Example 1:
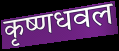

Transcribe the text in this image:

कृष्णधवल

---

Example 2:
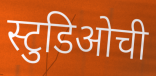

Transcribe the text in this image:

स्टुडिओची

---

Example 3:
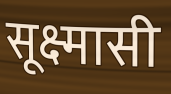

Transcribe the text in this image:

सूक्ष्मासी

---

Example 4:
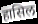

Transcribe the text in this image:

हासिल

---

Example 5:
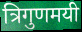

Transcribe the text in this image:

त्रिगुणमयी